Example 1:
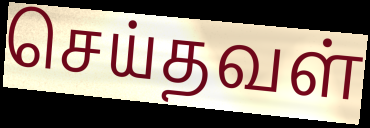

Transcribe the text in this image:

செய்தவள்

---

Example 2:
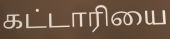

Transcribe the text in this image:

கட்டாரியை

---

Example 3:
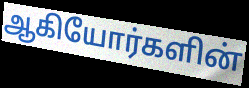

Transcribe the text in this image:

ஆகியோர்களின்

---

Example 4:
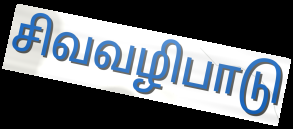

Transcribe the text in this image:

சிவவழிபாடு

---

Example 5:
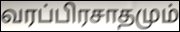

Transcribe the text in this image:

வரப்பிரசாதமும்